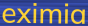
eximia